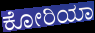
ಕೋರಿಯಾ